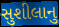
સુશીલાનુ